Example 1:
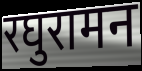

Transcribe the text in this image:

रघुरामन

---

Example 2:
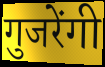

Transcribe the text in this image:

गुजरेंगी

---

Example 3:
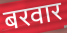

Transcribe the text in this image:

बरवार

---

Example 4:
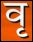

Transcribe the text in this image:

वृ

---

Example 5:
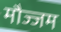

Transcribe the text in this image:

मौज्जम